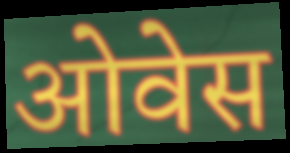
ओवेस